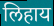
लिहाय